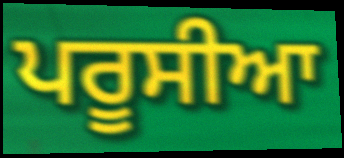
ਪਰੂਸੀਆ